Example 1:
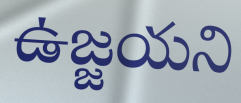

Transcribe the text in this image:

ఉజ్జయని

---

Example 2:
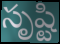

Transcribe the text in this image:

సృష్టి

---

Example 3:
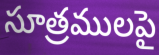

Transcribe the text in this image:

సూత్రములపై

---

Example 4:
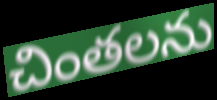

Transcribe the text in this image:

చింతలను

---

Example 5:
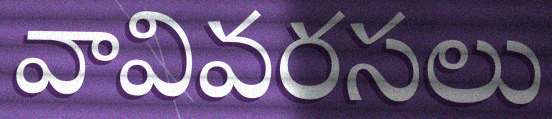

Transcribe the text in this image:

వావివరసలు